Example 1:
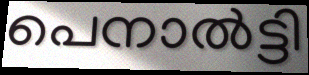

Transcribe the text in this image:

പെനാൽട്ടി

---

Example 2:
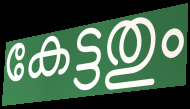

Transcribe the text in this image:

കേട്ടതും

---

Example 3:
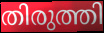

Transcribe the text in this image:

തിരുത്തി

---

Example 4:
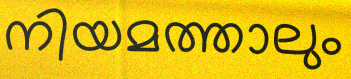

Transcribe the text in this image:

നിയമത്താലും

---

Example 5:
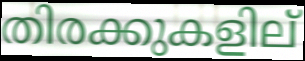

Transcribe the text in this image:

തിരക്കുകളില്